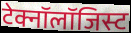
टेक्नॉलॉजिस्ट